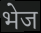
भेज